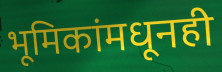
भूमिकांमधूनही